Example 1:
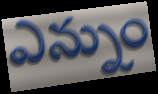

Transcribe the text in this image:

ఎన్నుం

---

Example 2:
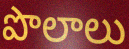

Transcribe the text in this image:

పొలాలు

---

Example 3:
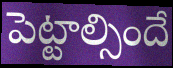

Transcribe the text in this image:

పెట్టాల్సిందే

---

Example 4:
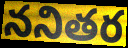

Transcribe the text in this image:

ననితర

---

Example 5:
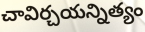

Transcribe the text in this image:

చావిర్చయన్నిత్యం